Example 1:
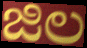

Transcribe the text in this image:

జిల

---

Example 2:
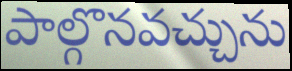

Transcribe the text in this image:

పాల్గొనవచ్చును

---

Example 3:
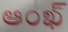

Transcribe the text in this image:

ఆంఖ్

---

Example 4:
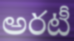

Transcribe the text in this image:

అరటీ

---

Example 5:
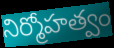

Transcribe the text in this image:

నిర్మోహత్వం